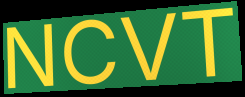
NCVT